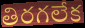
తిరగలేక